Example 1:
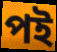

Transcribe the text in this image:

পই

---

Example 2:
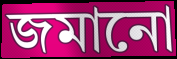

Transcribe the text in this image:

জমানো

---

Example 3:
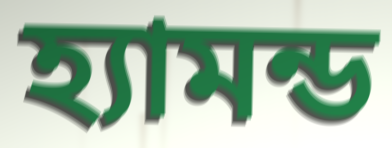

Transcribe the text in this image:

হ্যামন্ড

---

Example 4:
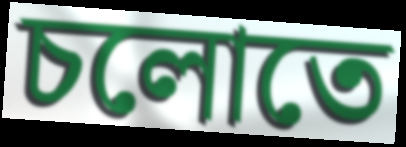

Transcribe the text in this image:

চলোতে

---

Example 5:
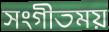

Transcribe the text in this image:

সংগীতময়